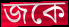
জকে